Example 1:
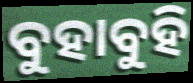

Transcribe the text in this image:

ବୁହାବୁହି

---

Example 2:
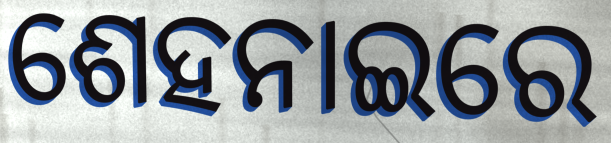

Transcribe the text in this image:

ଶେହନାଇରେ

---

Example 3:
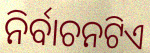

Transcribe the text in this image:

ନିର୍ବାଚନଟିଏ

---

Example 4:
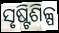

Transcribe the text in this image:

ସୃଷ୍ଟିଶିଳ୍ପ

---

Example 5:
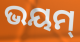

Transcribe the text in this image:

ଭୟମ୍